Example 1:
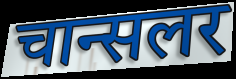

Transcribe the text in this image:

चान्सलर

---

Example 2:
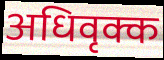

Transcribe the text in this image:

अधिवृक्क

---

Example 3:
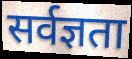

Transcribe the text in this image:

सर्वज्ञता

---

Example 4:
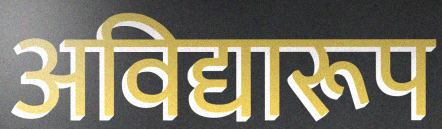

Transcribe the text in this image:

अविद्यारूप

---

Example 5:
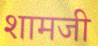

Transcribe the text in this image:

शामजी